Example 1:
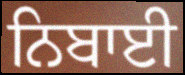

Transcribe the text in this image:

ਨਿਬਾਈ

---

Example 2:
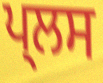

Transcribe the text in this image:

ਪ੍ਲਸ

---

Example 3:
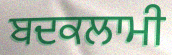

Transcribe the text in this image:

ਬਦਕਲਾਮੀ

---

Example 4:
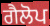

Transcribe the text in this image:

ਗੈਲੋਪ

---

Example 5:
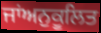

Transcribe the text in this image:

ਜਾਂਅਨੁਕੂਲਿਤ